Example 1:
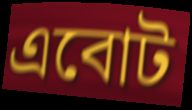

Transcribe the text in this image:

এবোট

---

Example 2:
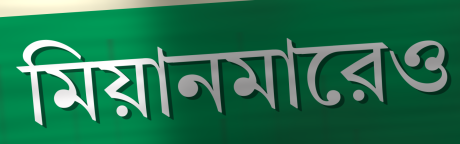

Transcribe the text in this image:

মিয়ানমারেও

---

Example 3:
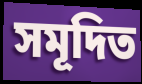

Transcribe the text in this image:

সমূদিত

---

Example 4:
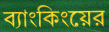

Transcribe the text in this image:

ব্যাংকিংয়ের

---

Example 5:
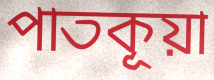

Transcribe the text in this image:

পাতকূয়া